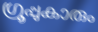
ഗ്രൂപ്പുകാരും